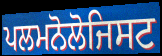
ਪਲਮਨੋਲੋਜਿਸਟ